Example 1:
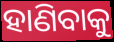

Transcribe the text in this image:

ହାଣିବାକୁ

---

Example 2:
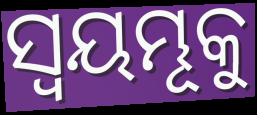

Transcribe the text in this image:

ସ୍ଵୟମ୍ଭୂକୁ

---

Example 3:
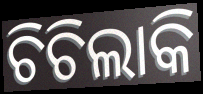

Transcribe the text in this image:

ଚିଚିଲାକି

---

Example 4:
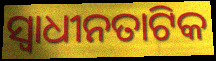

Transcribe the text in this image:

ସ୍ୱାଧୀନତାଟିକ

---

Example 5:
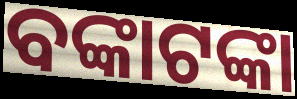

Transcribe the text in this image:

ବଙ୍କାଟଙ୍କା